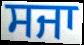
ਸਜਾ